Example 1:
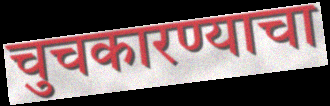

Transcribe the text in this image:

चुचकारण्याचा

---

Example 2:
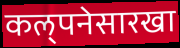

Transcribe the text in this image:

कल्पनेसारखा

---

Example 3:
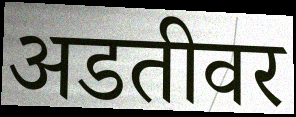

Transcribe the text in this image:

अडतीवर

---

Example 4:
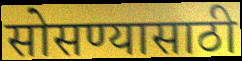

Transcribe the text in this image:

सोसण्यासाठी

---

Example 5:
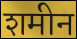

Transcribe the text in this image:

शमीन